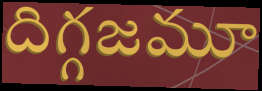
దిగ్గజమూ